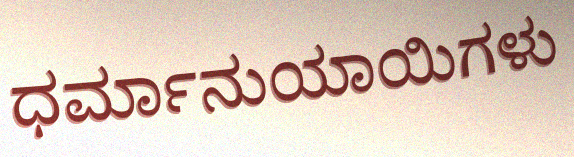
ಧರ್ಮಾನುಯಾಯಿಗಳು